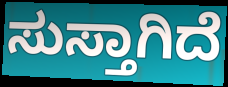
ಸುಸ್ತಾಗಿದೆ